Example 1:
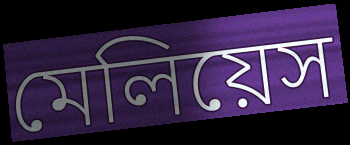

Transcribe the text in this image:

মেলিয়েস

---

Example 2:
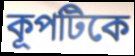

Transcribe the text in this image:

কূপটিকে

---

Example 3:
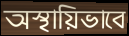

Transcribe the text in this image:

অস্থায়িভাবে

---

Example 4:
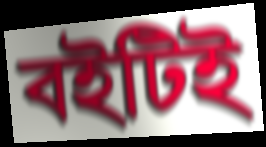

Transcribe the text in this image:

বইটিই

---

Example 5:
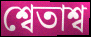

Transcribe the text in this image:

শ্বেতাশ্ব